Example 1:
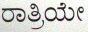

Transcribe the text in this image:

ರಾತ್ರಿಯೇ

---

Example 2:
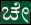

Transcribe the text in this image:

ಚೇ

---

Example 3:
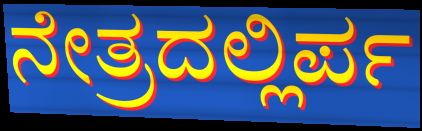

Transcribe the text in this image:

ನೇತ್ರದಲ್ಲಿರ್ಪ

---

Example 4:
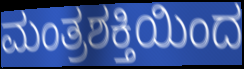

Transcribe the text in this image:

ಮಂತ್ರಶಕ್ತಿಯಿಂದ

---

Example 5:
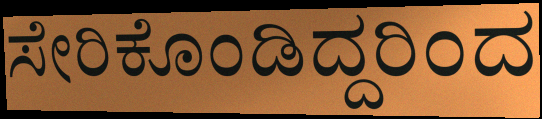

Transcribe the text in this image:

ಸೇರಿಕೊಂಡಿದ್ದರಿಂದ